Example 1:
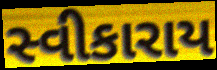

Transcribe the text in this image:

સ્વીકારાય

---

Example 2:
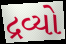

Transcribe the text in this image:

દ્રવ્યો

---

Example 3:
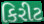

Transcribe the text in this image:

કિરીટ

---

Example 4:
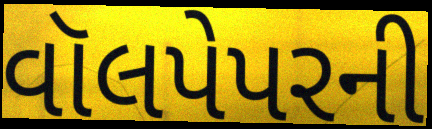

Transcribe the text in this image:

વૉલપેપરની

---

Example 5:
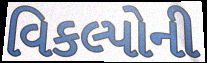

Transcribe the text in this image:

વિકલ્પોની